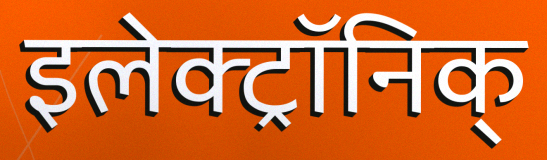
इलेक्ट्रॉनिक्